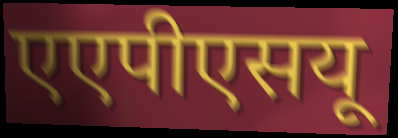
एएपीएसयू